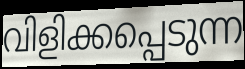
വിളിക്കപ്പെടുന്ന